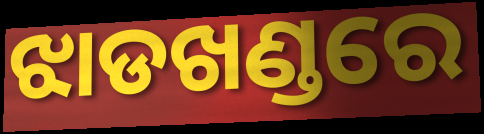
ଝାଡଖଣ୍ଡରେ